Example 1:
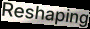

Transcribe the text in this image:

Reshaping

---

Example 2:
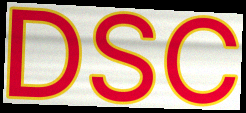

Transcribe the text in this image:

DSC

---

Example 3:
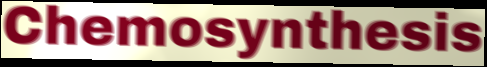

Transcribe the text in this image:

Chemosynthesis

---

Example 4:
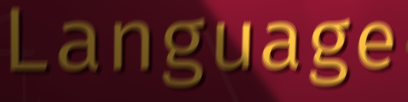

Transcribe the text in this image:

Language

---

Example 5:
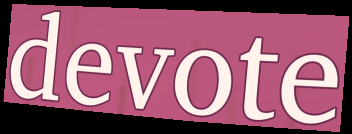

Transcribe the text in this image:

devote